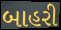
બાહરી